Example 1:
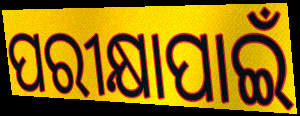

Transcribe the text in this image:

ପରୀକ୍ଷାପାଇଁ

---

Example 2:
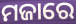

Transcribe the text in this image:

ମଜାରେ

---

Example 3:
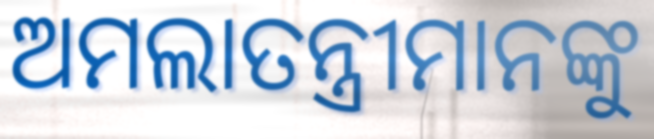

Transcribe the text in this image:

ଅମଲାତନ୍ତ୍ରୀମାନଙ୍କୁ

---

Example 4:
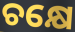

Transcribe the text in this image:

ଚକ୍ଷେ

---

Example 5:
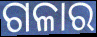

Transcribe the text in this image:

ଗଳାର